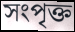
সংপৃক্ত